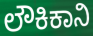
ಲೌಕಿಕಾನಿ